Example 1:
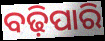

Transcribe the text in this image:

ବଢ଼ିପାରି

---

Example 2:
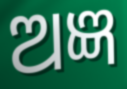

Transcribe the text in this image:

ଅଜ୍ଞ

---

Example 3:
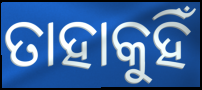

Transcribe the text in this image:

ତାହାକୁହିଁ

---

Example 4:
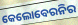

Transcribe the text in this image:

କେଲୋବେରନିର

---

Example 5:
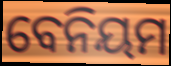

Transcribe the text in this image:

ବେନିୟମ